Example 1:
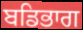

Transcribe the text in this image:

ਬਡਿਭਾਗ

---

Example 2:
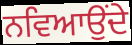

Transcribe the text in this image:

ਨਵਿਆਉਂਦੇ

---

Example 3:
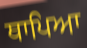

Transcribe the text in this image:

ਥਾਪਿਆ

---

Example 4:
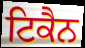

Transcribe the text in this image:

ਟਿਕੈਨ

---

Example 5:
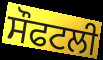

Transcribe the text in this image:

ਸੌਫਟਲੀ